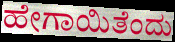
ಹೇಗಾಯಿತೆಂದು